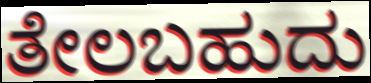
ತೇಲಬಹುದು